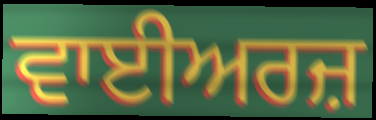
ਵਾਈਅਰਜ਼